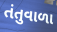
તંતુવાળા